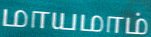
மாயமாம்